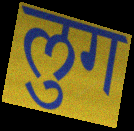
लुग